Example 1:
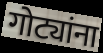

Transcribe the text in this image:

गोट्यांना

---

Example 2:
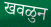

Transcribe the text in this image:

खवळुन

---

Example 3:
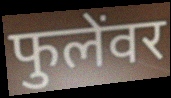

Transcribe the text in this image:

फुलेंवर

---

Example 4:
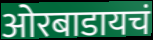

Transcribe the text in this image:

ओरबाडायचं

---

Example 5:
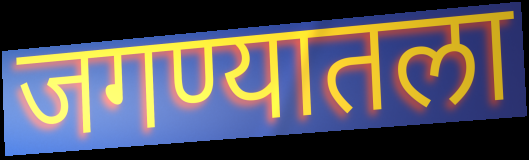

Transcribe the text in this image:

जगण्यातला